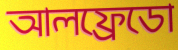
আলফ্রেডো